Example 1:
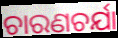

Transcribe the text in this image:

ଚାରଣଚର୍ଯା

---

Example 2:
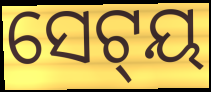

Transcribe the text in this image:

ସେଟ୍‌ୟ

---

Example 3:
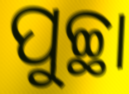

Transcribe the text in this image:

ପୁଚ୍ଛା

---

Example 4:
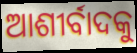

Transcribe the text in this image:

ଆଶୀର୍ବାଦକୁ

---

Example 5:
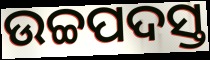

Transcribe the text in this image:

ଉଚ୍ଚପଦସ୍ତ